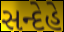
સન્દેહે